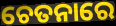
ଚେତନାରେ